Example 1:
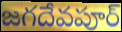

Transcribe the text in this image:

జగదేవపూర్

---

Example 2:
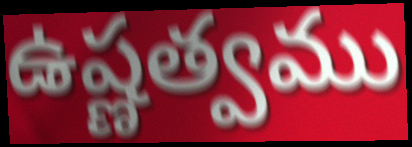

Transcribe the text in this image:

ఉష్ణత్వము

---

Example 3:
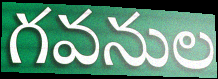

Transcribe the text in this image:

గవనుల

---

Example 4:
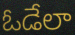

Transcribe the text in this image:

ఓడేలా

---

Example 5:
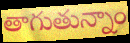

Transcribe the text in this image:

తాగుతున్నాం